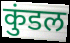
कुंडल